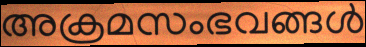
അക്രമസംഭവങ്ങൾ